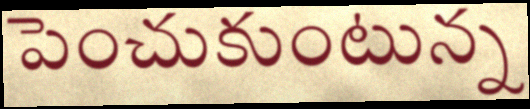
పెంచుకుంటున్న